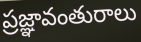
ప్రజ్ఞావంతురాలు